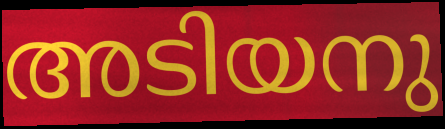
അടിയനു